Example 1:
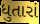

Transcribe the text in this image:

ધુતારાં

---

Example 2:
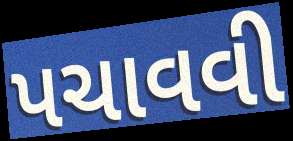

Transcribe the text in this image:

પચાવવી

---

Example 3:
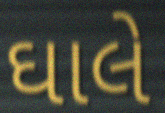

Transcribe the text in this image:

ઘાલે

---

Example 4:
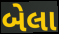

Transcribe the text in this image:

બેલા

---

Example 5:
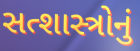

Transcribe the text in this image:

સત્શાસ્ત્રોનું